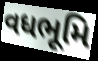
વધભૂમિ